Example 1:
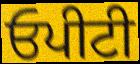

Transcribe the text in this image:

ਓਪੀਟੀ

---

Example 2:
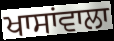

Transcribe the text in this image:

ਖਾਸਾਂਵਾਲਾ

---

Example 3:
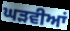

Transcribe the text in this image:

ਘੜਵੀਆਂ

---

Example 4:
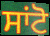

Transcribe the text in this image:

ਸਾਂਟੋ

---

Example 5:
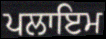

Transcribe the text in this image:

ਪਲਾਇਮ